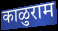
काळुराम